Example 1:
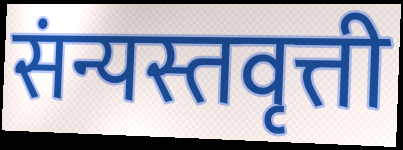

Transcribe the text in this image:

संन्यस्तवृत्ती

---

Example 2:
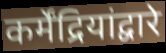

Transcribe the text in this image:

कर्मेंद्रियांद्वारे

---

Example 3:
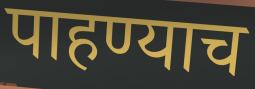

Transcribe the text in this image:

पाहण्याच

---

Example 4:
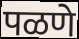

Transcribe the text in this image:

पळणे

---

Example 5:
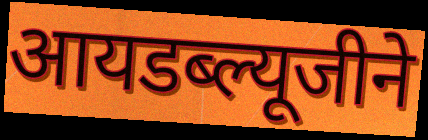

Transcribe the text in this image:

आयडब्ल्यूजीने